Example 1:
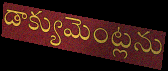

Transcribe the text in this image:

డాక్యుమెంట్లను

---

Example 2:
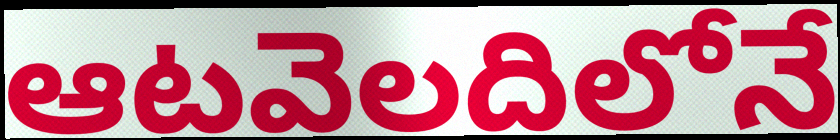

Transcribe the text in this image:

ఆటవెలదిలోనే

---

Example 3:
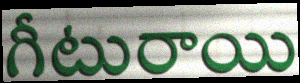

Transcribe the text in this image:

గీటురాయి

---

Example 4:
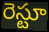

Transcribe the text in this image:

రెస్టూ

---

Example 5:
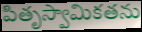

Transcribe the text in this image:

పితృస్వామికతను